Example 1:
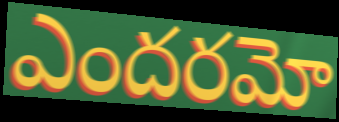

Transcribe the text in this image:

ఎందరమో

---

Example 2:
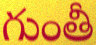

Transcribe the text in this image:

గుంతీ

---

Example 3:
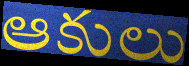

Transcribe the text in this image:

ఆకులు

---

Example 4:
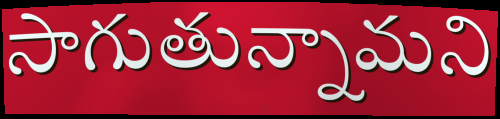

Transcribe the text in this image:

సాగుతున్నామని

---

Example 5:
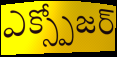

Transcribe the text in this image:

ఎక్స్పోజర్